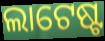
ଲାଟେଷ୍ଟ